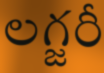
లగ్జరీ